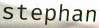
stephan